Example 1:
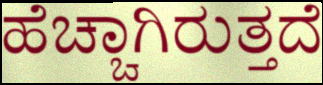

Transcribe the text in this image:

ಹೆಚ್ಚಾಗಿರುತ್ತದೆ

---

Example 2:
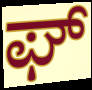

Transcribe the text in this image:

ಘ್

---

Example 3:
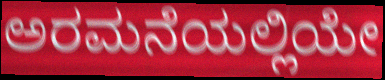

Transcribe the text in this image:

ಅರಮನೆಯಲ್ಲಿಯೇ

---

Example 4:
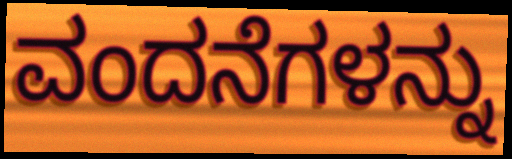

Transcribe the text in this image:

ವಂದನೆಗಳನ್ನು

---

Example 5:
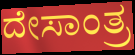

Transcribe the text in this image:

ದೇಸಾಂತ್ರ